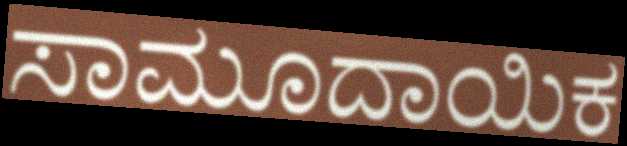
ಸಾಮೂದಾಯಿಕ